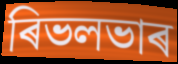
ৰিভলভাৰ